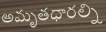
అమృతధారల్ని